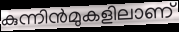
കുന്നിൻമുകളിലാണ്